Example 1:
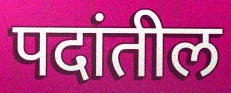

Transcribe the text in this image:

पदांतील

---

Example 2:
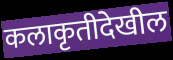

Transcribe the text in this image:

कलाकृतीदेखील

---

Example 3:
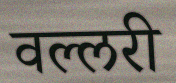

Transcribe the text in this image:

वल्लरी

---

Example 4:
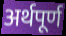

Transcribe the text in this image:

अर्थपूर्ण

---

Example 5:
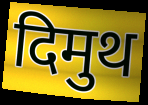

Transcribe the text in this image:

दिमुथ